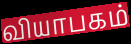
வியாபகம்